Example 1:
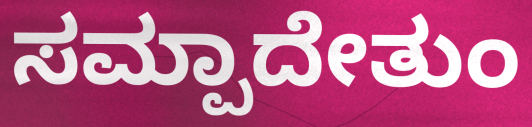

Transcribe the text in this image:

ಸಮ್ಪಾದೇತುಂ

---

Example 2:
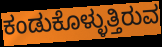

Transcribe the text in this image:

ಕಂಡುಕೊಳ್ಳುತ್ತಿರುವ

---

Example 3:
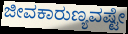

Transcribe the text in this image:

ಜೀವಕಾರುಣ್ಯವಷ್ಟೇ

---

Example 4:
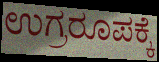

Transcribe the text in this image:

ಉಗ್ರರೂಪಕ್ಕೆ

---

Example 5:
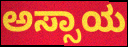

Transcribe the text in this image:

ಅಸ್ಸಾಯ